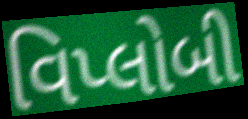
વિપ્લોબી